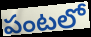
పంటలో